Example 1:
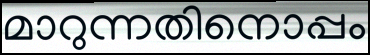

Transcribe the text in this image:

മാറുന്നതിനൊപ്പം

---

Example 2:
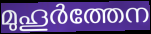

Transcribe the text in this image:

മുഹൂർത്തേന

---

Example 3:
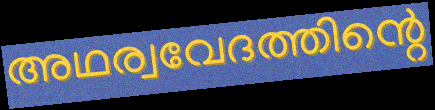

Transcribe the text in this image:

അഥര്വവേദത്തിന്റെ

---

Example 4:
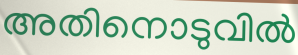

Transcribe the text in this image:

അതിനൊടുവിൽ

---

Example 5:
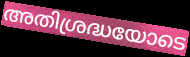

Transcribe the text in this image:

അതിശ്രദ്ധയോടെ